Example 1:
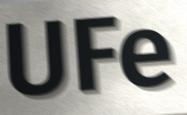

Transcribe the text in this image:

UFe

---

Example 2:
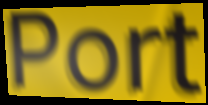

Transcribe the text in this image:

Port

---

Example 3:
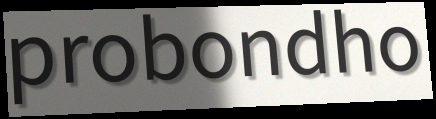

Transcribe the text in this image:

probondho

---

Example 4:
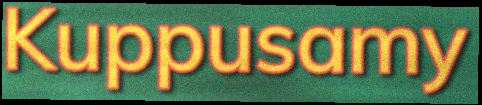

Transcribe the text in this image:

Kuppusamy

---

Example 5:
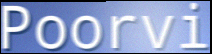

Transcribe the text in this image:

Poorvi